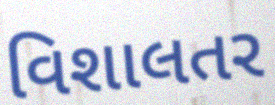
વિશાલતર